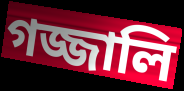
গজ্জালি